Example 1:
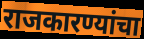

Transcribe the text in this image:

राजकारण्यांचा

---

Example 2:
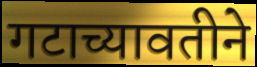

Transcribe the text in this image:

गटाच्यावतीने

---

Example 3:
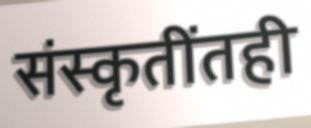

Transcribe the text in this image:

संस्कृतींतही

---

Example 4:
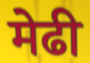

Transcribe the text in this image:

मेढी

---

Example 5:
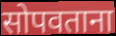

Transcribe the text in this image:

सोपवताना